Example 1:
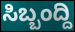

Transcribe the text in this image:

ಸಿಬ್ಬಂದ್ದಿ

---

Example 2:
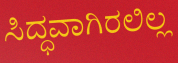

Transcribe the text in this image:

ಸಿದ್ಧವಾಗಿರಲಿಲ್ಲ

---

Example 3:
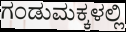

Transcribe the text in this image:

ಗಂಡುಮಕ್ಕಳಲ್ಲಿ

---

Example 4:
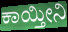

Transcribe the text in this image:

ಕಾಯ್ತೀನಿ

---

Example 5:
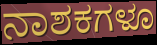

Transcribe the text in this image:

ನಾಶಕಗಳೂ